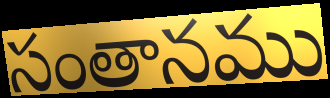
సంతానము